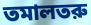
তমালতরু